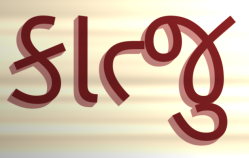
કાત્જુ